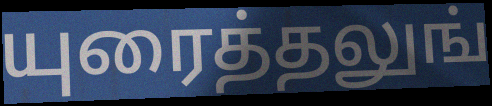
யுரைத்தலுங்